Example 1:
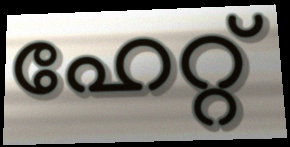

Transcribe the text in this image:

ഹേറ്റ്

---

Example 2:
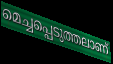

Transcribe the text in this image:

മെച്ചപ്പെടുത്തലാണ്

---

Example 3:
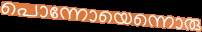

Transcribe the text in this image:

പൊന്നോയെന്നൊരു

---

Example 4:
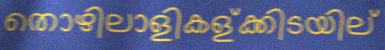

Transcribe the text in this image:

തൊഴിലാളികള്ക്കിടയില്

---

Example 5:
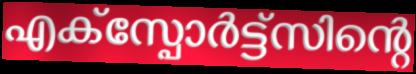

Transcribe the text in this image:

എക്സ്പോർട്ട്സിന്റെ